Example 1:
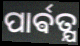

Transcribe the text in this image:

ପାର୍ଵତ୍ଯ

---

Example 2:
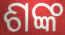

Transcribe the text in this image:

ଶଙ୍କ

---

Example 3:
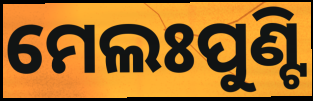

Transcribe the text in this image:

ମେଲଃପୁଣ୍ଟି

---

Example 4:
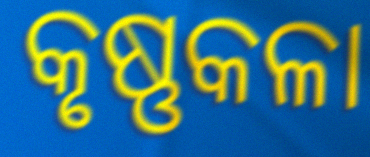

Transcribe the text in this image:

କୃଷ୍ଣକଳା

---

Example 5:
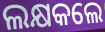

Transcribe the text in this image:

ଲକ୍ଷକଲେ